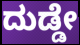
ದುಡ್ಡೇ